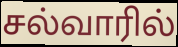
சல்வாரில்